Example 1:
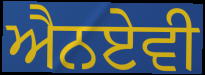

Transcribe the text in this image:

ਐਨਏਵੀ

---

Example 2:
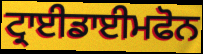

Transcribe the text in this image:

ਟ੍ਰਾਈਡਾਈਮਫੋਨ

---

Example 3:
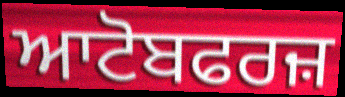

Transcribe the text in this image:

ਆਟੋਬਫਰਜ਼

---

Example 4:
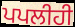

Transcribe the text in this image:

ਪਪਲੀਹੀ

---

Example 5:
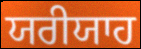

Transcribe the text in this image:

ਯਰੀਯਾਹ